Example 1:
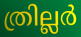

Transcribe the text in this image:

ത്രില്ലർ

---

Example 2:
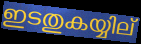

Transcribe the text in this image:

ഇടതുകയ്യില്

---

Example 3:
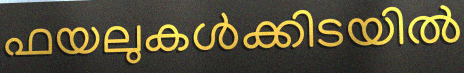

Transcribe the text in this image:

ഫയലുകൾക്കിടയിൽ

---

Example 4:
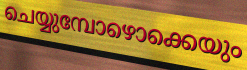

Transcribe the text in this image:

ചെയ്യുമ്പോഴൊക്കെയും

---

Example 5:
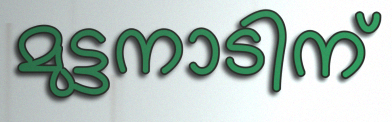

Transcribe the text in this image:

മുട്ടനാടിന്